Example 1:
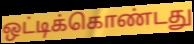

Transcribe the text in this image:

ஒட்டிக்கொண்டது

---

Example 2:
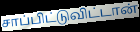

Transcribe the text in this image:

சாப்பிட்டுவிட்டான்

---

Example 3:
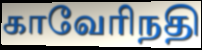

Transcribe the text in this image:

காவேரிநதி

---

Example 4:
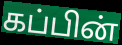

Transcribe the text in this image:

கப்பின்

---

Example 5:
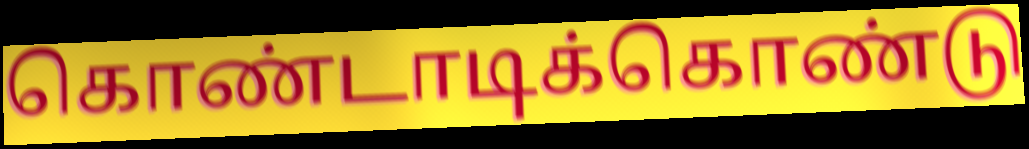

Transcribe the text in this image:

கொண்டாடிக்கொண்டு